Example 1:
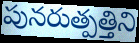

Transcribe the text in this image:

పునరుత్పత్తిని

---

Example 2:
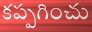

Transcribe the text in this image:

కప్పగించు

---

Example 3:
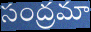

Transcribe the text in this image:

సంద్రమా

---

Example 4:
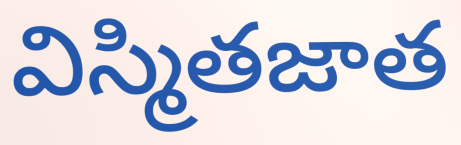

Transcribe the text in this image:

విస్మితజాత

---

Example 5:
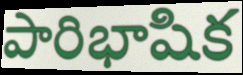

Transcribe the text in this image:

పారిభాషిక